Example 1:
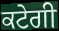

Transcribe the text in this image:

ਕਟੇਗੀ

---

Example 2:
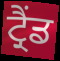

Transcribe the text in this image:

ਟ੍ਰੈਂਡ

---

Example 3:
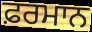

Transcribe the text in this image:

ਫ਼ਰਮਾਨ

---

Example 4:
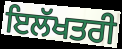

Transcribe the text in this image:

ਇਲੱਖਤਰੀ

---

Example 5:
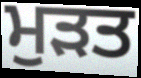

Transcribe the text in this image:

ਮੁੜਤ